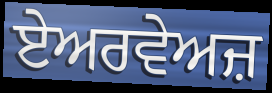
ਏਅਰਵੇਅਜ਼